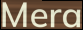
Mera